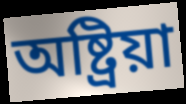
অষ্ট্রিয়া